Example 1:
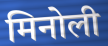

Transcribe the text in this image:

मिनोली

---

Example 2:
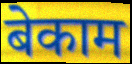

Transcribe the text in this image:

बेकाम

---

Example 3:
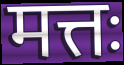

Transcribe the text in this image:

मत्तः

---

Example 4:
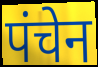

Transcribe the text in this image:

पंचेन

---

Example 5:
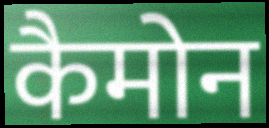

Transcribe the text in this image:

कैमोन